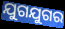
ଯୁଗଯୁଗର